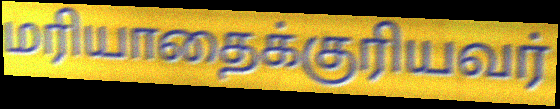
மரியாதைக்குரியவர்